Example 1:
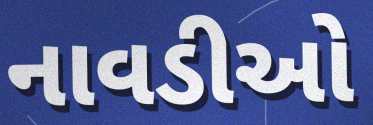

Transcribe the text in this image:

નાવડીઓ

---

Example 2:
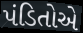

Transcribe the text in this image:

પંડિતોએ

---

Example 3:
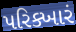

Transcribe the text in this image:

પરિક્ખારં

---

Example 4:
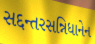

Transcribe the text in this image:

સદ્દન્તરસન્નિધાનેન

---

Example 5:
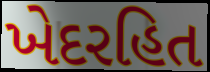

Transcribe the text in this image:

ખેદરહિત